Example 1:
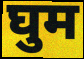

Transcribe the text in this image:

घुम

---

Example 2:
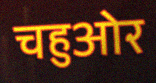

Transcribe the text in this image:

चहुओर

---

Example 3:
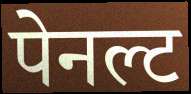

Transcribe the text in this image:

पेनल्ट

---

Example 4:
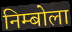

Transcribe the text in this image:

निम्बोला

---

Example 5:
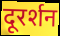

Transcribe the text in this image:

दूरर्शन